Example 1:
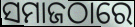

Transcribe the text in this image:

ସମାଜଠାରେ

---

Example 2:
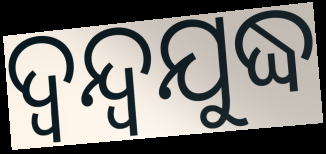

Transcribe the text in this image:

ଦ୍ୱନ୍ଦ୍ୱଯୁଦ୍ଧ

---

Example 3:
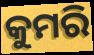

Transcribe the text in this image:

କୁମରି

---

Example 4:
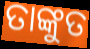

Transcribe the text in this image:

ତାଙ୍କୁତ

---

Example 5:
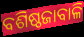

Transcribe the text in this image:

ବଶିଷ୍ଠଜାବାଳି